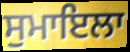
ਸੁਮਾਇਲਾ